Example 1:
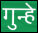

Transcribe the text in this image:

गुन्हे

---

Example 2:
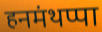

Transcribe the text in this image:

हनमंथप्पा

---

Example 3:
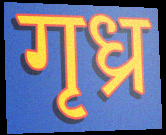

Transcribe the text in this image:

गृध्र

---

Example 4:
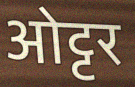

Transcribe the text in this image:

ओट्टर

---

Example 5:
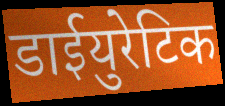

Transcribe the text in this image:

डाईयुरेटिक